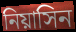
নিয়াসিন